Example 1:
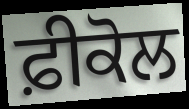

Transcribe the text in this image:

ਫ਼ੀਕੋਲ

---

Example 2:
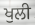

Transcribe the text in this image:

ਖੁਲੀ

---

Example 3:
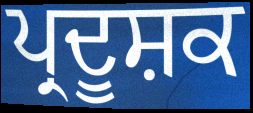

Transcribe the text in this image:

ਪ੍ਰਦੂਸ਼ਕ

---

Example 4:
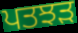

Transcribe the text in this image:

ਪਤਝੜ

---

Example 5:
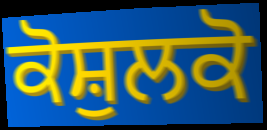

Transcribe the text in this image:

ਕੋਸ਼ੁਲਕੋ